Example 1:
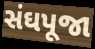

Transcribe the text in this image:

સંઘપૂજા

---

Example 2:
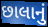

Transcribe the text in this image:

છાલાનું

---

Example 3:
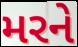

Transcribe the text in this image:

મરને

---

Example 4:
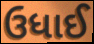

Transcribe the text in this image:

ઉધાઈ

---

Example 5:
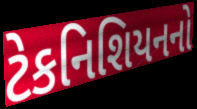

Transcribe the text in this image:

ટેકનિશિયનનો